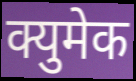
क्युमेक